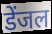
डेंजल